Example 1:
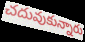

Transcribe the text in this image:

చదువుకున్నారు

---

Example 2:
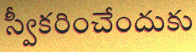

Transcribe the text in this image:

స్వీకరించేందుకు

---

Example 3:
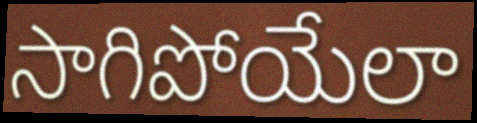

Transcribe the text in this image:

సాగిపోయేలా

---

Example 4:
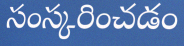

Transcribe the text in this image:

సంస్కరించడం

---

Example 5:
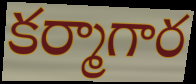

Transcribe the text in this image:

కర్మాగార